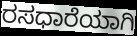
ರಸಧಾರೆಯಾಗಿ